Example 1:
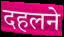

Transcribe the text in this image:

दहलने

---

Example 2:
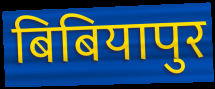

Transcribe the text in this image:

बिबियापुर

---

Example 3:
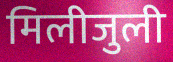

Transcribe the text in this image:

मिलीजुली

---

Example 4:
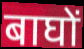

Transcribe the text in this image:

बाघों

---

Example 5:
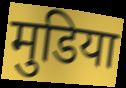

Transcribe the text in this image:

मुडिया